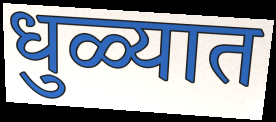
धुळ्यात